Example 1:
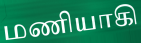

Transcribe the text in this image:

மணியாகி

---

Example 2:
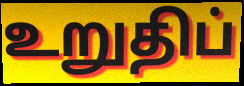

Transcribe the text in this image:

உறுதிப்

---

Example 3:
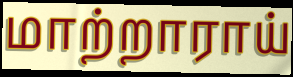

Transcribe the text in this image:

மாற்றாராய்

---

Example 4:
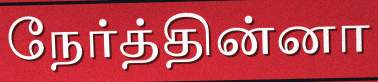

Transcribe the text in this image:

நேர்த்தின்னா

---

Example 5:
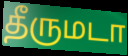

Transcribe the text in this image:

தீருமடா